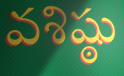
వశిష్ఠు